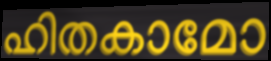
ഹിതകാമോ